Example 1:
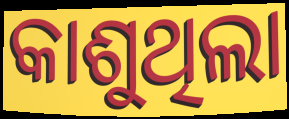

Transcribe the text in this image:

କାଶୁଥିଲା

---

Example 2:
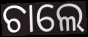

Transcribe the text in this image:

ଚାଲେ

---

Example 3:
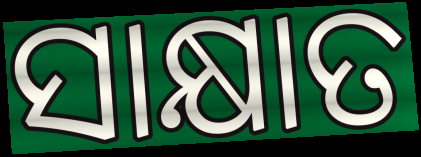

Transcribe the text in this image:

ସାକ୍ଷାତ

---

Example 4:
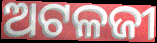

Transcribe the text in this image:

ଅଟଳଜୀ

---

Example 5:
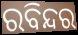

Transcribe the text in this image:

ରବିନ୍ଦର